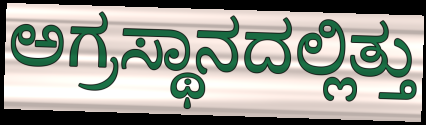
ಅಗ್ರಸ್ಥಾನದಲ್ಲಿತ್ತು